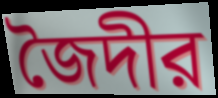
জৈদীর